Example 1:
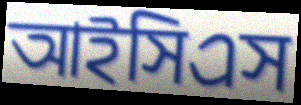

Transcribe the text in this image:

আইসিএস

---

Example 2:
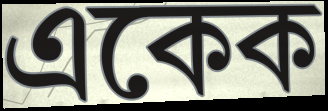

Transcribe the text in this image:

একেক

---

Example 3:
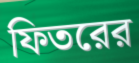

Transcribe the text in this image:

ফিতরের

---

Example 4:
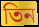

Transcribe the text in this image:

তিন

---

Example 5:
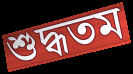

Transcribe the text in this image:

শুদ্ধতম